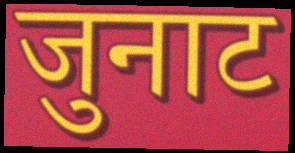
जुनाट